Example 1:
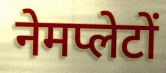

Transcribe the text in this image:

नेमप्लेटों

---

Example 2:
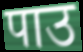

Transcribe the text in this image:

पाउ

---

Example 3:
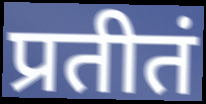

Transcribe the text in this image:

प्रतीतं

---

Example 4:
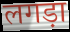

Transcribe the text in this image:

लगड़ा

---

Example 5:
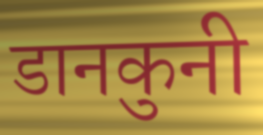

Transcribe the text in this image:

डानकुनी